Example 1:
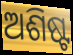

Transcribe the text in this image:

ଅଶିଷ୍ଟ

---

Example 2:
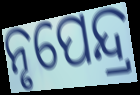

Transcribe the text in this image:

ନୃପେନ୍ଦ୍ର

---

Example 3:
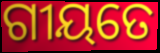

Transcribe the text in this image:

ଗୀୟତେ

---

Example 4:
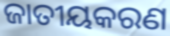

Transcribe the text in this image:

ଜାତୀୟକରଣ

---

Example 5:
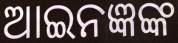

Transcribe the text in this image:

ଆଇନଜ୍ଞଙ୍କ